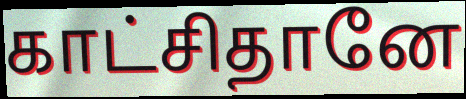
காட்சிதானே